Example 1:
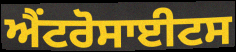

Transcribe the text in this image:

ਐਂਟਰੋਸਾਈਟਸ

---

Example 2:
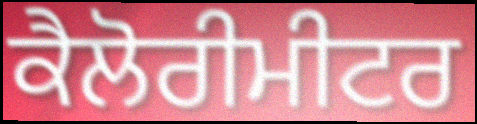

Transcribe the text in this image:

ਕੈਲੋਰੀਮੀਟਰ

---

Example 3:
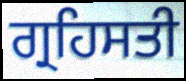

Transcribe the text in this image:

ਗ੍ਰਹਿਸਤੀ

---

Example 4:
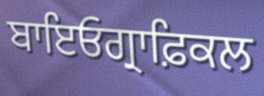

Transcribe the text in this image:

ਬਾਇਓਗ੍ਰਾਫ਼ਿਕਲ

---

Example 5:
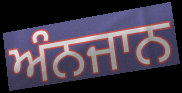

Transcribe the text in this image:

ਅੰਨਜਾਨ